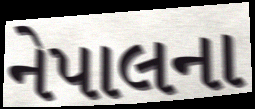
નેપાલના